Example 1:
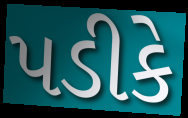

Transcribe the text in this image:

પડીકે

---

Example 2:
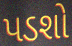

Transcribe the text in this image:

પડશો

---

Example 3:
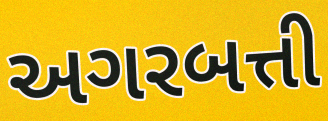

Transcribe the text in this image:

અગરબત્તી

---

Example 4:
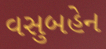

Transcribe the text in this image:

વસુબહેન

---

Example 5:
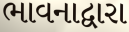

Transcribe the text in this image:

ભાવનાદ્વારા